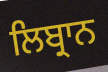
ਲਿਬ੍ਰਾਨ